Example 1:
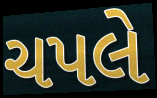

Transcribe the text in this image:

ચપલે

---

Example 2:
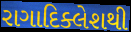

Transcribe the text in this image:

રાગાદિક્લેશથી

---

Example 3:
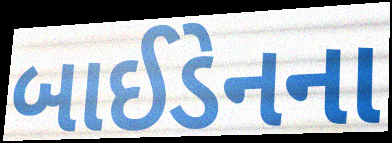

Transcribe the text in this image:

બાઈડેનના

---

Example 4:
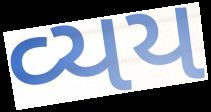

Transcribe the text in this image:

વ્યય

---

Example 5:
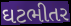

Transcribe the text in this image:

ઘટભીતર